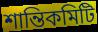
শান্তিকমিটি